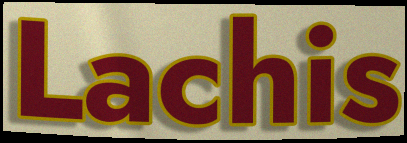
Lachis